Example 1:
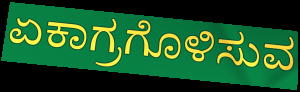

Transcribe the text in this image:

ಏಕಾಗ್ರಗೊಳಿಸುವ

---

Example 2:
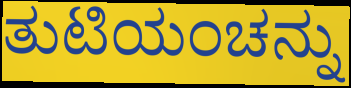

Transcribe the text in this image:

ತುಟಿಯಂಚನ್ನು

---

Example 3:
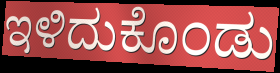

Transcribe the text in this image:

ಇಳಿದುಕೊಂಡು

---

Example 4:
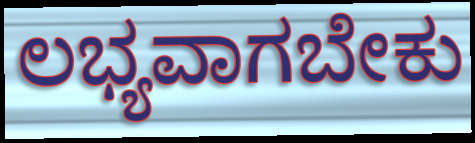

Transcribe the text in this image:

ಲಭ್ಯವಾಗಬೇಕು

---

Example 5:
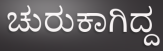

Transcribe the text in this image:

ಚುರುಕಾಗಿದ್ದ